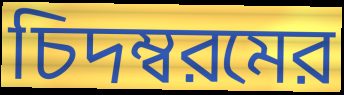
চিদম্বরমের